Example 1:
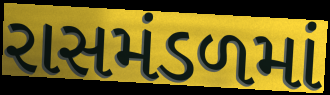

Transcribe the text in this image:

રાસમંડળમાં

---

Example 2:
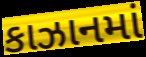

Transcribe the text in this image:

કાઝાનમાં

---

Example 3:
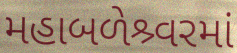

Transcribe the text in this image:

મહાબળેશ્ર્વરમાં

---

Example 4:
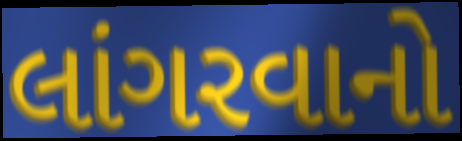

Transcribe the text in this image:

લાંગરવાનો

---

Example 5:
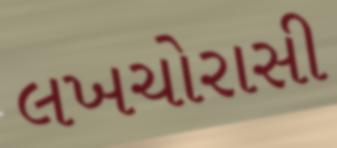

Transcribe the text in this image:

લખચોરાસી